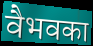
वैभवका